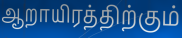
ஆறாயிரத்திற்கும்